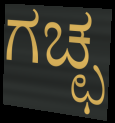
ಗಚ್ಛ